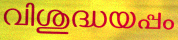
വിശുദ്ധയപ്പം